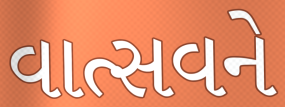
વાત્સવને